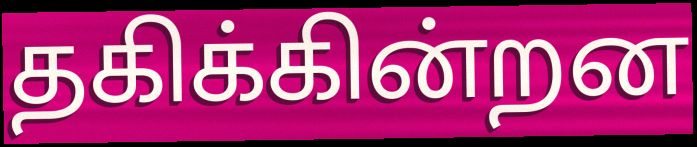
தகிக்கின்றன